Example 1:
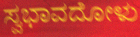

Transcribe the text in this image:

ಸ್ವಭಾವದೋಳು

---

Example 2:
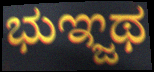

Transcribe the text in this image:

ಭುಞ್ಜಥ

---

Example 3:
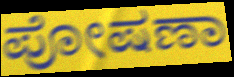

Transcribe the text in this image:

ಪೋಷಣಾ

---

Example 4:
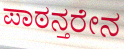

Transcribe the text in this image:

ಪಾಠನ್ತರೇನ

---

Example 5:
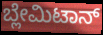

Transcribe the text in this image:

ಬ್ಲೇಮಿಟಾನ್